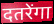
दतरेंगा